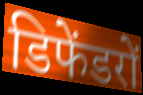
डिफेंडरों